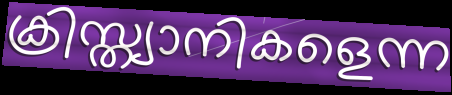
ക്രിസ്ത്യാനികളെന്ന